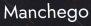
Manchego